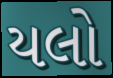
યલો